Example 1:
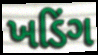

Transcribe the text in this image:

ખડિંગ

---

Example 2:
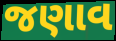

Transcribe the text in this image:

જણાવ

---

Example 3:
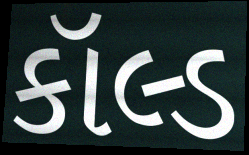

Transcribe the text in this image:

કૉલ્ડ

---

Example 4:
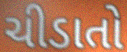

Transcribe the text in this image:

ચીડાતો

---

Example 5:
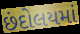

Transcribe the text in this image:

છંદોલયમાં